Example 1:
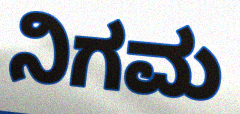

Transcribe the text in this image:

ನಿಗಮ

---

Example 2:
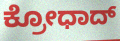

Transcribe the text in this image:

ಕ್ರೋಧಾದ್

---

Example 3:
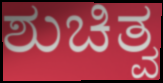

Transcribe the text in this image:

ಶುಚಿತ್ವ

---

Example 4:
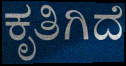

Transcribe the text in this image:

ಕೃತಿಗಿದೆ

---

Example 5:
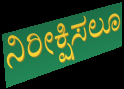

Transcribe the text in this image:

ನಿರೀಕ್ಷಿಸಲೂ